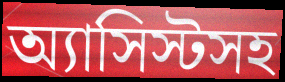
অ্যাসিস্টসহ